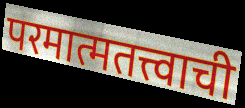
परमात्मतत्त्वाची